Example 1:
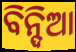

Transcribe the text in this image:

ବିନ୍ଦିଆ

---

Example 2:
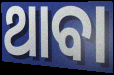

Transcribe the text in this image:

ଥାବା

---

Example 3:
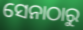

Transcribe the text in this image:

ସେନାଠାରୁ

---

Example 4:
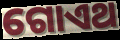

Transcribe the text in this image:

ଗୋଏଥ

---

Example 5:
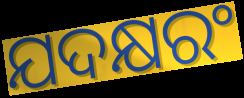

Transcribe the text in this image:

ଯଦକ୍ଷରଂ